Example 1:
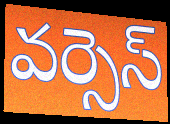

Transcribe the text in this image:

వర్సెస్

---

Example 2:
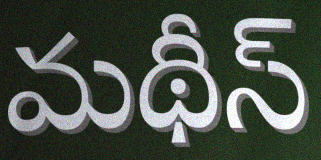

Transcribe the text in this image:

మథీస్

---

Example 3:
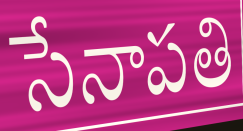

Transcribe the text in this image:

సేనాపతి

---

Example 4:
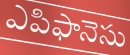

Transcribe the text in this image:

ఎపిఫానెసు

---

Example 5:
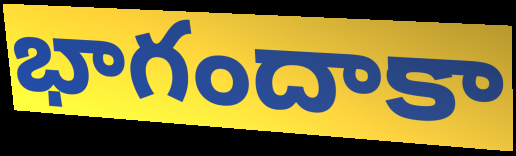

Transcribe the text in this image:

భాగందాకా